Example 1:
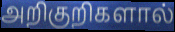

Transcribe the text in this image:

அறிகுறிகளால்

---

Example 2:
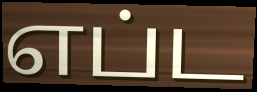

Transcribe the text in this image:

எப்ட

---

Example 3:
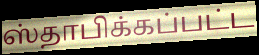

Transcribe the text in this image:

ஸ்தாபிக்கப்பட்ட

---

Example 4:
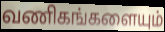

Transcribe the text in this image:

வணிகங்களையும்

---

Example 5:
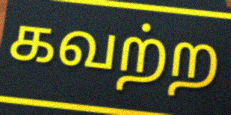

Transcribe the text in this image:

கவற்ற